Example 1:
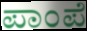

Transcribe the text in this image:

ಪಾಂಪೆ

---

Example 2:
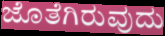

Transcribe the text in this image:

ಜೊತೆಗಿರುವುದು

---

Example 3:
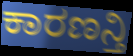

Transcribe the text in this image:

ಕಾರಣನ್ತಿ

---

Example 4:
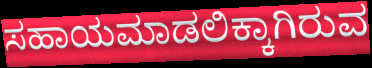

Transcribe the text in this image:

ಸಹಾಯಮಾಡಲಿಕ್ಕಾಗಿರುವ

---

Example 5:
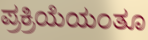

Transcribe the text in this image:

ಪ್ರಕ್ರಿಯೆಯಂತೂ